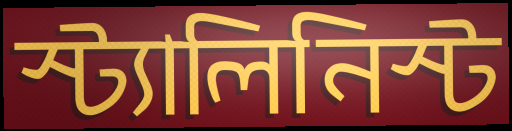
স্ট্যালিনিস্ট